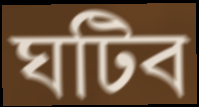
ঘটিব